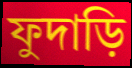
ফুদাড়ি